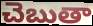
చెబుతా